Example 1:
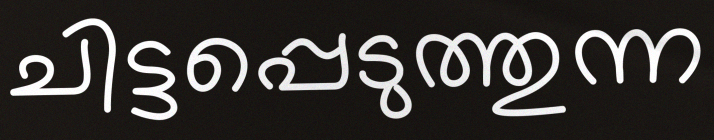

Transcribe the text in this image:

ചിട്ടപ്പെടുത്തുന്ന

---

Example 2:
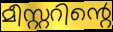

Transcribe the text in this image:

മീസ്റ്ററിന്റെ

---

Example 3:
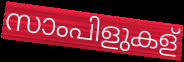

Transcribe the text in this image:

സാംപിളുകള്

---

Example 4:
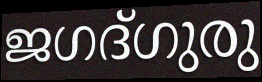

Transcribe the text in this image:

ജഗദ്ഗുരു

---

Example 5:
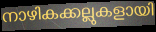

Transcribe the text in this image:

നാഴികക്കല്ലുകളായി